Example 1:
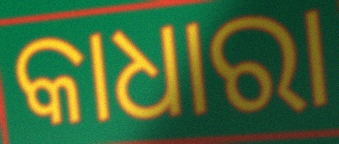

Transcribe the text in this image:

କାଧାରା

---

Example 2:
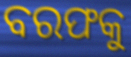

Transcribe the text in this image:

ବରଫକୁ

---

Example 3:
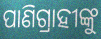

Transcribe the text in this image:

ପାଣିଗ୍ରାହୀଙ୍କୁ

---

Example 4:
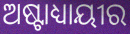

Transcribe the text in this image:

ଅଷ୍ଟାଧ୍ଯାୟୀର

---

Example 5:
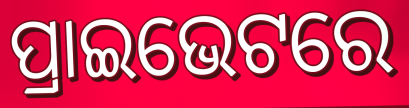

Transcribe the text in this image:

ପ୍ରାଇଭେଟରେ